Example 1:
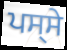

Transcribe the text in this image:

ਪਸ੍ਸੇ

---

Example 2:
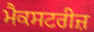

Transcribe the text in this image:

ਮੈਕਸਟਰੀਜ਼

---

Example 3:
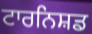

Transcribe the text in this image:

ਟਾਰਨਿਸ਼ਡ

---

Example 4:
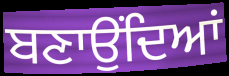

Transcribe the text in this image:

ਬਣਾਉਂਦਿਆਂ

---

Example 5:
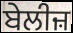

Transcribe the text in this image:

ਬੇਲੀਜ਼